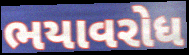
ભયાવરોધ